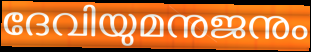
ദേവിയുമനുജനും